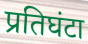
प्रतिघंटा